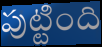
పుట్టింది